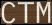
CTM